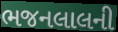
ભજનલાલની